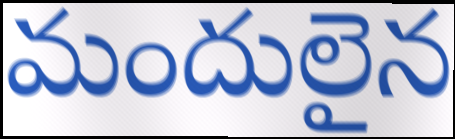
మందులైన